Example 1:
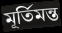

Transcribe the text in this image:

মূর্তিমন্ত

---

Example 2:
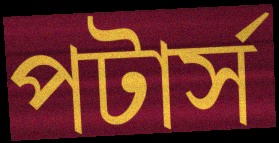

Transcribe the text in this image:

পটার্স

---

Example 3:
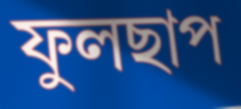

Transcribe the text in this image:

ফুলছাপ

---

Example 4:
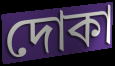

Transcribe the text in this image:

দোকা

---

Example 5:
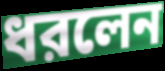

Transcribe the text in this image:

ধরলেন